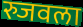
रुजवला